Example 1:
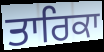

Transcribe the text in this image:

ਤਾਰਿਕਾ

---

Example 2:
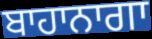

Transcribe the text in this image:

ਬਾਹਾਨਾਗਾ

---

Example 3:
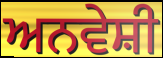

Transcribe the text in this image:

ਅਨਵੇਸ਼ੀ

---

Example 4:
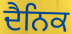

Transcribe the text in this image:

ਦੈਨਿਕ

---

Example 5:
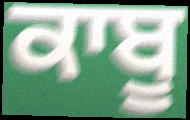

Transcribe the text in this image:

ਕਾਬੂ